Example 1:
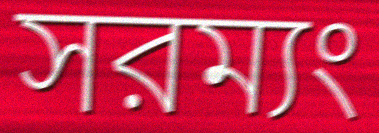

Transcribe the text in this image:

সরম্যং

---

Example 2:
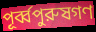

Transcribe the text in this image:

পূর্ব্বপুরুষগণ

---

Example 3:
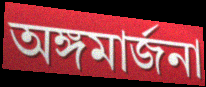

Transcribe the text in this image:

অঙ্গমার্জনা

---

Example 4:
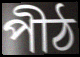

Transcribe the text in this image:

পীঠ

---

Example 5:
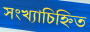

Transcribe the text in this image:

সংখ্যাচিহ্নিত